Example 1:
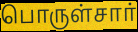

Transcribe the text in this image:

பொருள்சார்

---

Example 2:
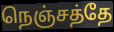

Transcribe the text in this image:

நெஞ்சத்தே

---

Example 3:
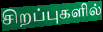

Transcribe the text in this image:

சிறப்புகளில்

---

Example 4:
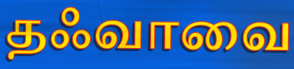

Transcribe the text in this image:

தஃவாவை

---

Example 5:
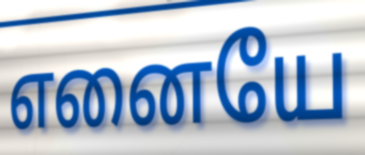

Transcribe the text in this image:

எனையே